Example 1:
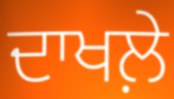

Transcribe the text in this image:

ਦਾਖਲ਼ੇ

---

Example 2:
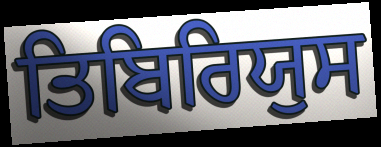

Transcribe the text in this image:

ਤਿਬਿਰਿਯੁਸ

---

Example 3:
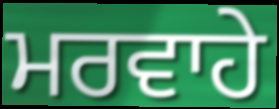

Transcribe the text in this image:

ਮਰਵਾਹੇ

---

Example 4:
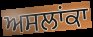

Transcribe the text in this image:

ਅਸਲਾਂਕਾ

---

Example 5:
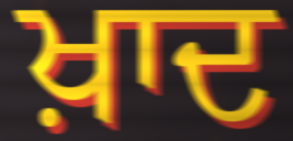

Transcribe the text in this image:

ਖ਼ਾਦ